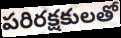
పరిరక్షకులతో